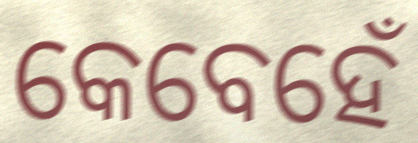
କେବେହେଁ